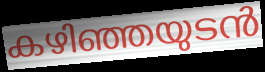
കഴിഞ്ഞയുടൻ